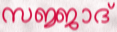
സജ്ജാദ്